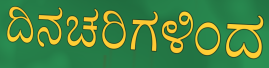
ದಿನಚರಿಗಳಿಂದ